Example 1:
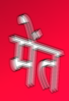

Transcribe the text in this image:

मेंत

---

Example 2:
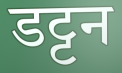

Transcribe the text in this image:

डट्टन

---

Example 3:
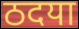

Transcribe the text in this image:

ठदया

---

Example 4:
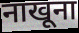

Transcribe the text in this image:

नाखूना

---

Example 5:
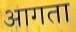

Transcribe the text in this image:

आगता